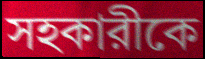
সহকারীকে